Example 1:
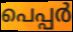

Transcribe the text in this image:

പെപ്പർ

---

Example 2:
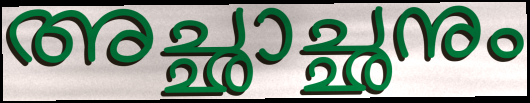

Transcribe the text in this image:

അച്ഛാച്ഛനും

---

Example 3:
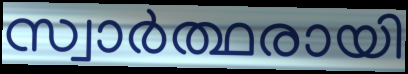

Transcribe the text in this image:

സ്വാർത്ഥരായി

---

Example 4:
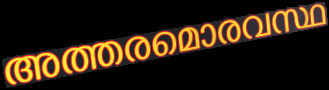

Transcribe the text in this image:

അത്തരമൊരവസ്ഥ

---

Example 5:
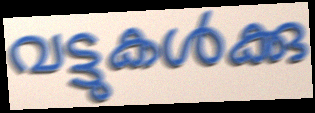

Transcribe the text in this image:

വട്ടുകൾക്കു